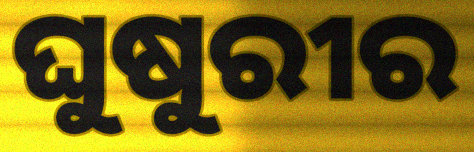
ଘୁଷୁରୀର